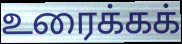
உரைக்கக்